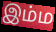
இம்ம